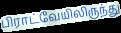
பிராட்வேயிலிருந்து